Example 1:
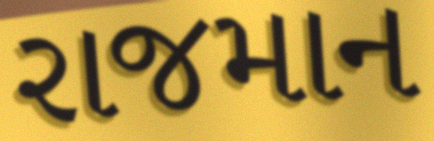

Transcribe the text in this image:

રાજમાન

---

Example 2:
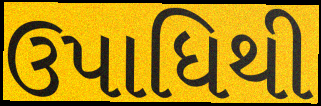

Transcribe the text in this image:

ઉપાધિથી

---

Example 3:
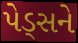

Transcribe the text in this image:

પેડ્સને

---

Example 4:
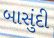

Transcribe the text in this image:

બાસુંદી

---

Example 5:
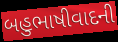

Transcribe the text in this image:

બહુભાષીવાદની